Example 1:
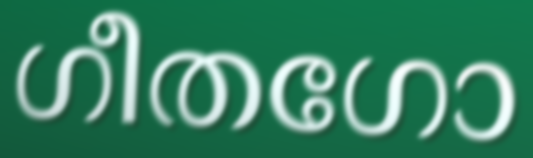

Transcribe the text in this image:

ഗീതഗോ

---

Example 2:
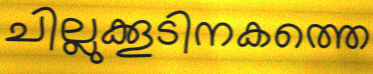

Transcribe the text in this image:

ചില്ലുക്കൂടിനകത്തെ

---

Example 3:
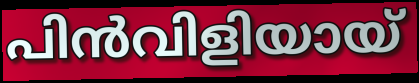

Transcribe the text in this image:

പിൻവിളിയായ്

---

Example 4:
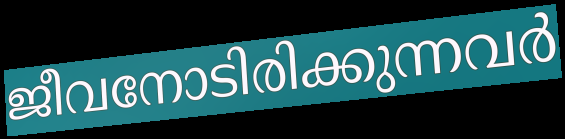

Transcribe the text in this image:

ജീവനോടിരിക്കുന്നവർ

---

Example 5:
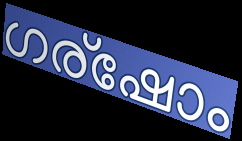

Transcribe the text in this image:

ഗര്ഷോം